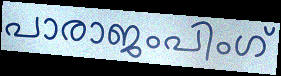
പാരാജംപിംഗ്